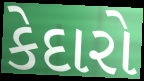
કેદારો